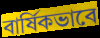
বার্ষিকভাবে